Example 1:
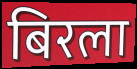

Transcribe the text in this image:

बिरला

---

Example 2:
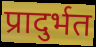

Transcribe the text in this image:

प्रादुर्भत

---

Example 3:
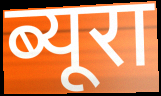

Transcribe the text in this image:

ब्यूरा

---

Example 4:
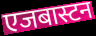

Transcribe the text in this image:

एजबास्टन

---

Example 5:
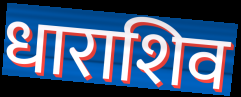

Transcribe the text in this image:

धाराशिव